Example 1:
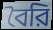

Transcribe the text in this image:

বৈরি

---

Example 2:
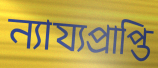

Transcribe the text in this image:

ন্যায্যপ্রাপ্তি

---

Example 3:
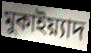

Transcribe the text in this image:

মুকাইয়্যাদ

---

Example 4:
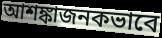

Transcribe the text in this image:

আশঙ্কাজনকভাবে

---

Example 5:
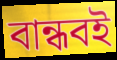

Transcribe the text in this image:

বান্ধবই